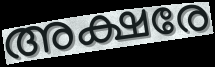
അക്ഷരേ